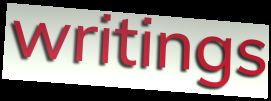
writings